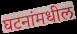
घटनांमधील